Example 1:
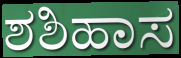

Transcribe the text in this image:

ಶಶಿಹಾಸ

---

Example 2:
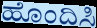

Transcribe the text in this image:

ಹೊಂದಿಸಿ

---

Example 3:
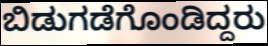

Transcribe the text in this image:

ಬಿಡುಗಡೆಗೊಂಡಿದ್ದರು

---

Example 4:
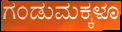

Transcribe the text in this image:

ಗಂಡುಮಕ್ಕಳೂ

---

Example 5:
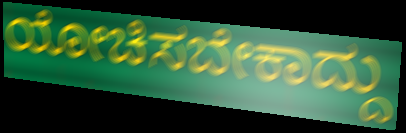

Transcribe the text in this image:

ಯೋಚಿಸಬೇಕಾದ್ದು